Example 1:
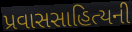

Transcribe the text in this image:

પ્રવાસસાહિત્યની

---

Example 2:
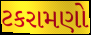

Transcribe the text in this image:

ટકરામણો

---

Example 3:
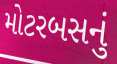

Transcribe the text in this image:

મોટરબસનું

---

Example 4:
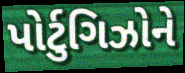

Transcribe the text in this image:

પોર્ટુગિઝોને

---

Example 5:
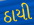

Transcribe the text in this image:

ઠાયી